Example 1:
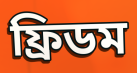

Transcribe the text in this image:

ফ্রিডম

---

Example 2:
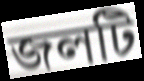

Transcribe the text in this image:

জলটি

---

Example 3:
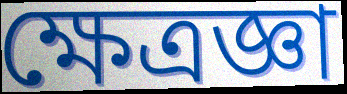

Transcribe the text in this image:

ক্ষেত্রজ্ঞা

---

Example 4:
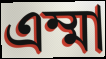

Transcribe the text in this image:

এম্মা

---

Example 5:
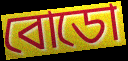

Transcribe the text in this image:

বোডো